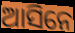
ଆସିନେ